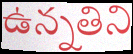
ఉన్నతిని